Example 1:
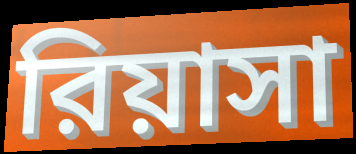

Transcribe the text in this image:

রিয়াসা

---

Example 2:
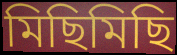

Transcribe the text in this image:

মিছিমিছি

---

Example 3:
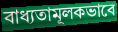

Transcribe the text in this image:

বাধ্যতামূলকভাবে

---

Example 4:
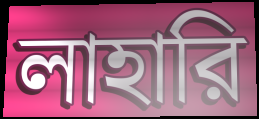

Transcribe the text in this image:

লাহারি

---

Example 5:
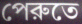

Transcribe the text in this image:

পেরুতে